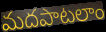
మదపాటలాం